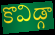
కొవిడ్గా